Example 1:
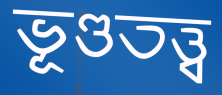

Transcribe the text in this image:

ভূণ্ডতত্ত্ব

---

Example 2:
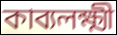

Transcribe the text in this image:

কাব্যলক্ষ্মী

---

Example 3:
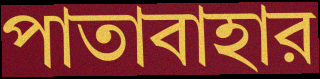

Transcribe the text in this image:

পাতাবাহার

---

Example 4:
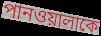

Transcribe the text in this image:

পানওয়ালাকে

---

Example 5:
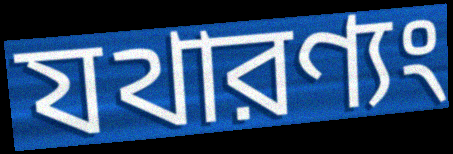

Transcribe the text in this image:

যথারণ্যং